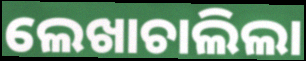
ଲେଖାଚାଲିଲା